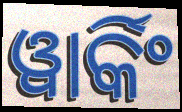
ୱାର୍କିଂ